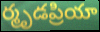
ర్మృడప్రియా